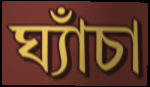
ঘ্যাঁচা